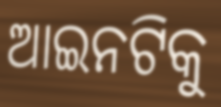
ଆଇନଟିକୁ